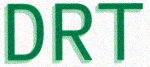
DRT